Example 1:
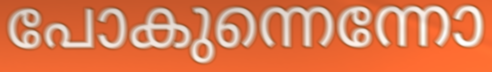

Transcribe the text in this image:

പോകുന്നെന്നോ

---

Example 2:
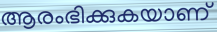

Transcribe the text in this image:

ആരംഭിക്കുകയാണ്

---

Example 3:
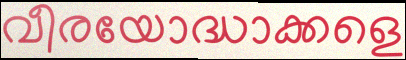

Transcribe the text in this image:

വീരയോദ്ധാക്കളെ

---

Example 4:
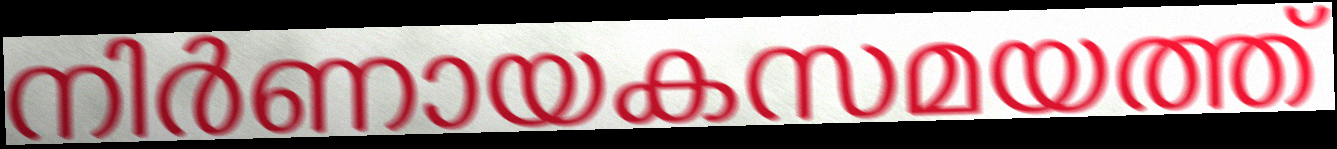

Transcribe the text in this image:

നിർണായകസമയത്ത്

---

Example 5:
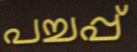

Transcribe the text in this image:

പച്ചപ്പ്